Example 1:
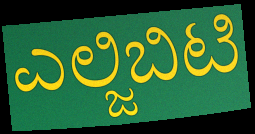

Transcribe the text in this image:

ಎಲ್ಜಿಬಿಟಿ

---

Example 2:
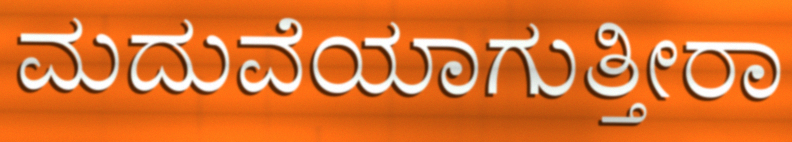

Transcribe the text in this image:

ಮದುವೆಯಾಗುತ್ತೀರಾ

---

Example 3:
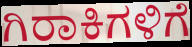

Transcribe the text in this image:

ಗಿರಾಕಿಗಳಿಗೆ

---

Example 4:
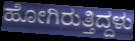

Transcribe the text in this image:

ಹೋಗಿರುತ್ತಿದ್ದಳು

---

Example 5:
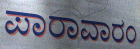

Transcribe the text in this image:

ಪಾರಾವಾರಂ